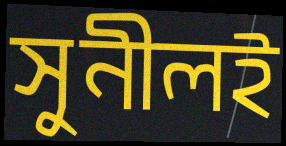
সুনীলই